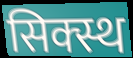
सिक्स्थ